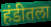
हंडीतला